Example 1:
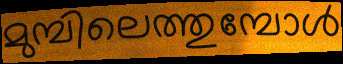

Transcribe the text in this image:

മുമ്പിലെത്തുമ്പോൾ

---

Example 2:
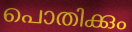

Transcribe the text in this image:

പൊതിക്കും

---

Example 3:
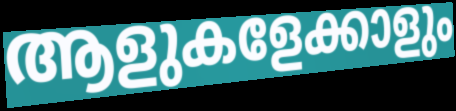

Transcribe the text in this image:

ആളുകളേക്കാളും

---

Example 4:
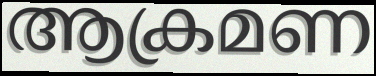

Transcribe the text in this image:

ആക്രമണ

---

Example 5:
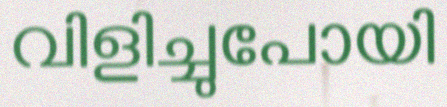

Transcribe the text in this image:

വിളിച്ചുപോയി